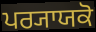
ਪਰ੍ਯਾਯਕੋ